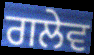
ਗਲੇਵ